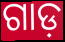
ଗାଡ଼